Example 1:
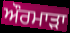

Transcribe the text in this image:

ਔਰਮਾੜਾ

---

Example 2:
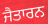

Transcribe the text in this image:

ਜੈਤਾਰਨ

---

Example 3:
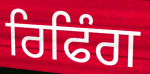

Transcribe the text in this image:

ਰਿਫਿੰਗ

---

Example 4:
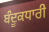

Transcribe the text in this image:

ਬੰਦੂਕਧਾਰੀ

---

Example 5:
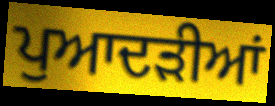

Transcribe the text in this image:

ਪੁਆਦੜੀਆਂ